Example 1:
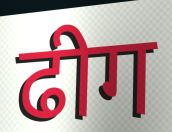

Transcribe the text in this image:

ढीग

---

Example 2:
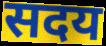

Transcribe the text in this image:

सदय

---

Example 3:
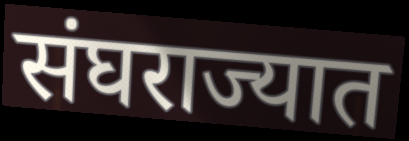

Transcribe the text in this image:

संघराज्यात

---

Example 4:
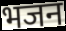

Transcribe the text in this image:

भजन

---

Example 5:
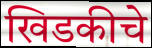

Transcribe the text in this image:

खिडकीचे